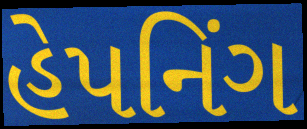
હેપનિંગ